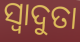
ସ୍ୱାଦୁତା